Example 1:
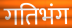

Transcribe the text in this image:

गतिभंग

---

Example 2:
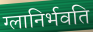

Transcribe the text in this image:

ग्लानिर्भवति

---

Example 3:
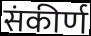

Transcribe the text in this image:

संकीर्ण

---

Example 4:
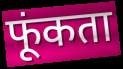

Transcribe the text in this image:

फूंकता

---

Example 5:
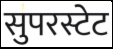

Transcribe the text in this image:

सुपरस्टेट